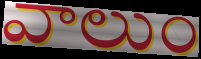
వాలుం